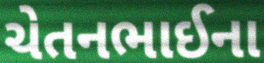
ચેતનભાઈના